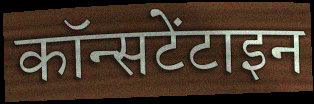
कॉन्सटेंटाइन